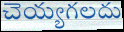
చెయ్యగలదు